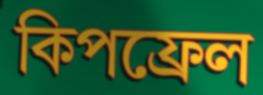
কিপফ্রেল